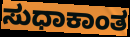
ಸುಧಾಕಾಂತ